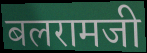
बलरामजी